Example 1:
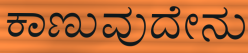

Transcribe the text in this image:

ಕಾಣುವುದೇನು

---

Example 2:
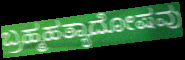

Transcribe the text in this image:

ಬ್ರಹ್ಮಹತ್ಯಾದೋಷವು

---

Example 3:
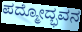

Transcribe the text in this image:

ಪದ್ಮೋದ್ಭವನ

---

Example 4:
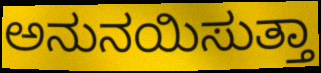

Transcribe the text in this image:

ಅನುನಯಿಸುತ್ತಾ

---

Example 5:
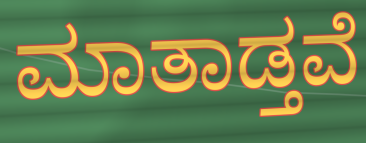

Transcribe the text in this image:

ಮಾತಾಡ್ತವೆ